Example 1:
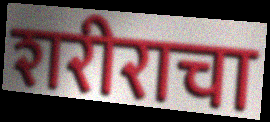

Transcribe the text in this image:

शरीराचा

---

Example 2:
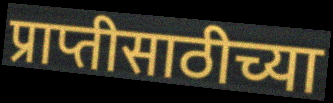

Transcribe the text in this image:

प्राप्तीसाठीच्या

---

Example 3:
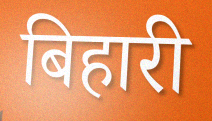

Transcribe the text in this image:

बिहारी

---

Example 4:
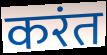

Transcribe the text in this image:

करंत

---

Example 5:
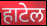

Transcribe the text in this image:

हाटेल